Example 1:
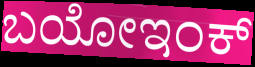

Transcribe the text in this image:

ಬಯೋಇಂಕ್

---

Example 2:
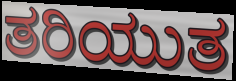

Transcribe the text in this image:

ತರಿಯುತ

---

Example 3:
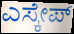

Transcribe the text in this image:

ಎಸ್ಕೇಪ್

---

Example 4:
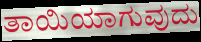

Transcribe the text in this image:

ತಾಯಿಯಾಗುವುದು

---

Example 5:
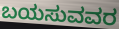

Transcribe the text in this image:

ಬಯಸುವವರ